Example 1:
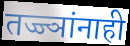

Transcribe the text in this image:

तज्ज्ञांनाही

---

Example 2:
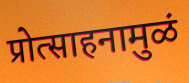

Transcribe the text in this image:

प्रोत्साहनामुळं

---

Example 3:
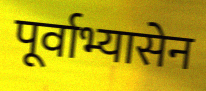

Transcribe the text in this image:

पूर्वाभ्यासेन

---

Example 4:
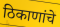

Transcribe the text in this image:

ठिकाणांचे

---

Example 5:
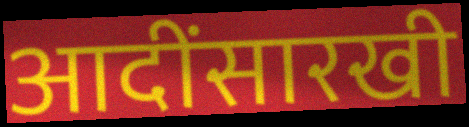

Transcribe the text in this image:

आदींसारखी